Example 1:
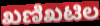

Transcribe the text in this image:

ಖಣಿಖಟಿಲ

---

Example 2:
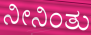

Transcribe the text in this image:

ನೀನಿಂತು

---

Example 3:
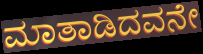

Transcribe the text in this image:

ಮಾತಾಡಿದವನೇ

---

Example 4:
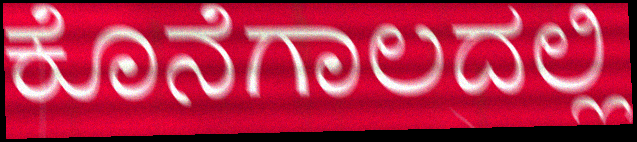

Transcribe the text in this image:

ಕೊನೆಗಾಲದಲ್ಲಿ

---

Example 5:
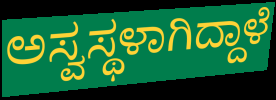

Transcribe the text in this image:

ಅಸ್ವಸ್ಥಳಾಗಿದ್ದಾಳೆ